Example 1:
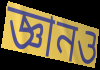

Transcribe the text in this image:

জ্ঞানও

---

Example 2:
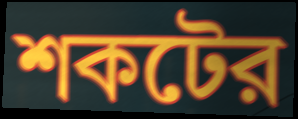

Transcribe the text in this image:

শকটের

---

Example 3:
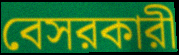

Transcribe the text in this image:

বেসরকারী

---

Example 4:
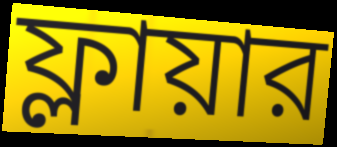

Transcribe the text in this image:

ফ্লায়ার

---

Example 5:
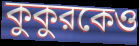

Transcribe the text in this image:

কুকুরকেও